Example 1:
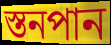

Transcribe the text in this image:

স্তনপান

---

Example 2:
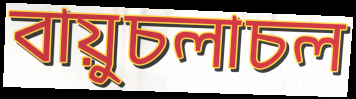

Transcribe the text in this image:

বায়ুচলাচল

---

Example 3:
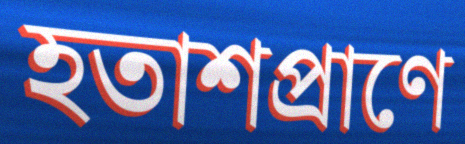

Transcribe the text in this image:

হতাশপ্রাণে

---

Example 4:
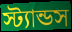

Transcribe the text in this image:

স্ট্যান্ডস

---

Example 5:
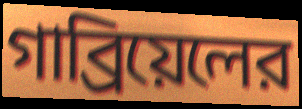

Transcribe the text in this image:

গাব্রিয়েলের